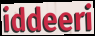
iddeeri